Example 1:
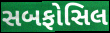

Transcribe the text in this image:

સબફોસિલ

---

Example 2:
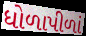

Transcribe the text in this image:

ધોળાપીળાં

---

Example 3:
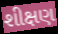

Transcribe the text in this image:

શીક્ષણ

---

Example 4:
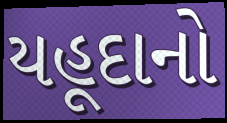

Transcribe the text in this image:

યહૂદાનો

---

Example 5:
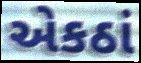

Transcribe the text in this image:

એકઠાં